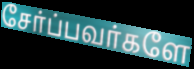
சேர்ப்பவர்களே